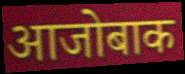
आजोबाक